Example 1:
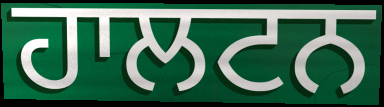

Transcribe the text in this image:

ਹਾਲਟਨ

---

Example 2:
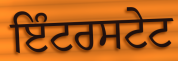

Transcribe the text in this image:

ਇੰਟਰਸਟੇਟ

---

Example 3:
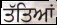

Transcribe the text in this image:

ਤੱਤਿਆਂ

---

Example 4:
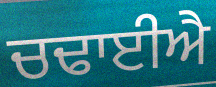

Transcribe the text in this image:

ਚਢਾਈਐ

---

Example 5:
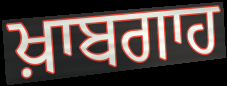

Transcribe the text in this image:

ਖ਼ਾਬਗਾਹ